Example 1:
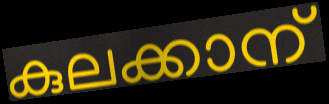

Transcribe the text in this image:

കുലക്കാന്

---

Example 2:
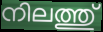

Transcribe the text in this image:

നിലത്തു്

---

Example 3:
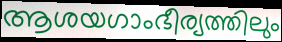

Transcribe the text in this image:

ആശയഗാംഭീര്യത്തിലും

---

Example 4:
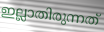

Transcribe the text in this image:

ഇല്ലാതിരുന്നത്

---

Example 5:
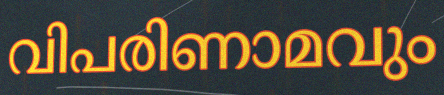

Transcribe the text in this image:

വിപരിണാമവും